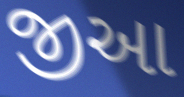
જીઆ